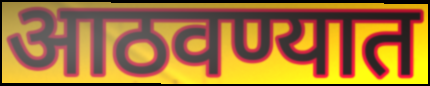
आठवण्यात